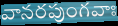
వానరపుంగవాః